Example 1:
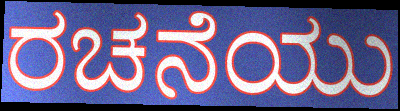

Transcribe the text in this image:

ರಚನೆಯು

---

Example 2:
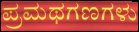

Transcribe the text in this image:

ಪ್ರಮಥಗಣಗಳು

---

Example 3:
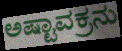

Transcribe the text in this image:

ಅಷ್ಟಾವಕ್ರನು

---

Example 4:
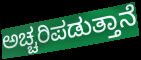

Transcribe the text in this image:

ಅಚ್ಚರಿಪಡುತ್ತಾನೆ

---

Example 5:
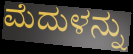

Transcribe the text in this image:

ಮೆದುಳನ್ನು